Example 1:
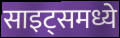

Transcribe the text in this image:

साइट्समध्ये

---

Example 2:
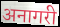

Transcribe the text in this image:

अनागरी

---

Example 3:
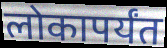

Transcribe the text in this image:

लोकापर्यंत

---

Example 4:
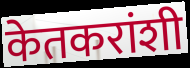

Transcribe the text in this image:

केतकरांशी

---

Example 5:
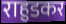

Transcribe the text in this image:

राहुडकर